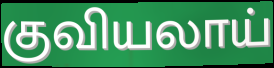
குவியலாய்